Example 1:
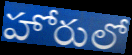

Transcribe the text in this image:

హోరులో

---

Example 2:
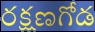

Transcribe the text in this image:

రక్షణగోడ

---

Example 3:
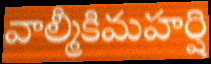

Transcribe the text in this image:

వాల్మీకిమహర్షి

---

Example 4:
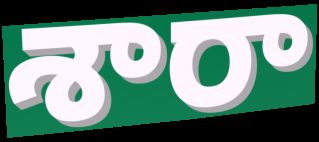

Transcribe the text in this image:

శారా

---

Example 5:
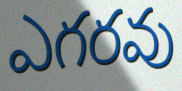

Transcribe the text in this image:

ఎగరవు